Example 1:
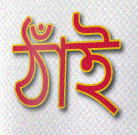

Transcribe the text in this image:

ঠাঁই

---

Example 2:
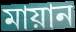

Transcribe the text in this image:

মায়ান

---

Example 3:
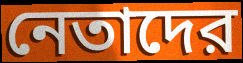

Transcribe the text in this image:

নেতাদের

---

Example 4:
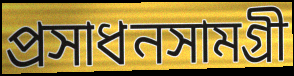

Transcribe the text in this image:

প্রসাধনসামগ্রী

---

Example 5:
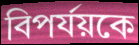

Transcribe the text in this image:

বিপর্যয়কে